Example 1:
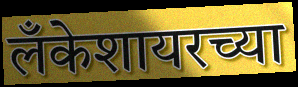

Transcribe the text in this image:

लँकेशायरच्या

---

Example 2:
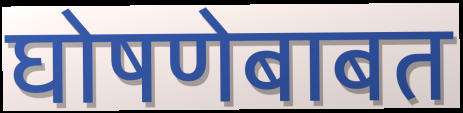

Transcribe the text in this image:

घोषणेबाबत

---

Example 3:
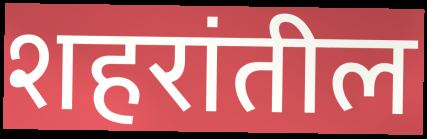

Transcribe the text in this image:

शहरांतील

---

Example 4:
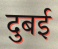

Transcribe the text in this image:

दुबई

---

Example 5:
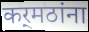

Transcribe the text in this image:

कर्मठांना